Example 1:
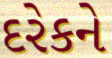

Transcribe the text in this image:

દરેકને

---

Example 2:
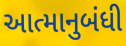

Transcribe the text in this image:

આત્માનુબંધી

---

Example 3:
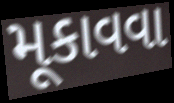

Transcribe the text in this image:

મૂકાવવા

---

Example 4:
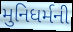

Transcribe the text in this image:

મુનિધર્મની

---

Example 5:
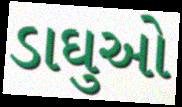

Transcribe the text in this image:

ડાઘુઓ